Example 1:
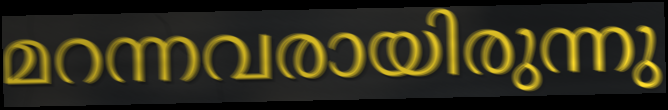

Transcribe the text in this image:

മറന്നവരായിരുന്നു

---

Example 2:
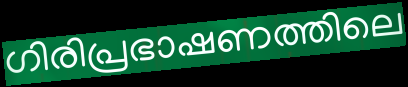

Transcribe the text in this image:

ഗിരിപ്രഭാഷണത്തിലെ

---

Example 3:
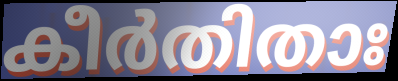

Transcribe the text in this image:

കീർതിതാഃ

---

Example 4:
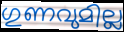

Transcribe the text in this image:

ഗുണവുമില്ല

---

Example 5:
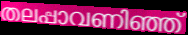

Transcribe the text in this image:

തലപ്പാവണിഞ്ഞ്